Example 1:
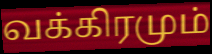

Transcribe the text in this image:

வக்கிரமும்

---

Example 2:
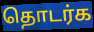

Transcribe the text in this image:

தொடர்க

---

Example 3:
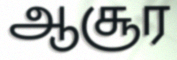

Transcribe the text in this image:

ஆசூர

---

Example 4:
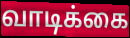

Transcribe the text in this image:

வாடிக்கை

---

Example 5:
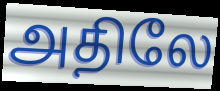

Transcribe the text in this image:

அதிலே